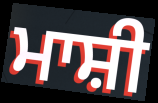
ਮਾਸ਼ੀ